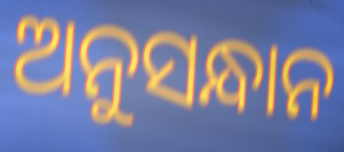
ଅନୁସନ୍ଧାନ